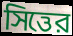
সিত্তের